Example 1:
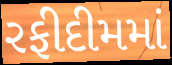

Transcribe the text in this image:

રફીદીમમાં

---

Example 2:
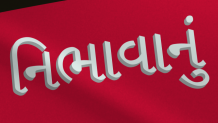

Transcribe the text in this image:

નિભાવાનું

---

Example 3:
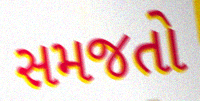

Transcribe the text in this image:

સમજતો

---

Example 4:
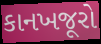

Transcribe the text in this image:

કાનખજૂરો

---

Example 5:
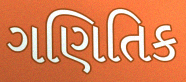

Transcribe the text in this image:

ગણિતિક